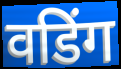
वडिंग